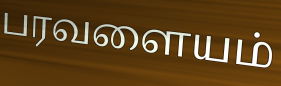
பரவளையம்